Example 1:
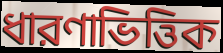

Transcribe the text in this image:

ধারণাভিত্তিক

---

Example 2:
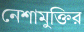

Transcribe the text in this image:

নেশামুক্তির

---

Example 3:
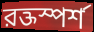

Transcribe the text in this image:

রক্তস্পর্শ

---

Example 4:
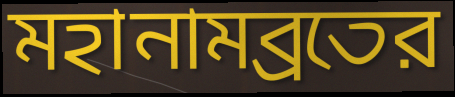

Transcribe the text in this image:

মহানামব্রতের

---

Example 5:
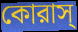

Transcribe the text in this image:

কোরাস্